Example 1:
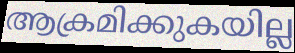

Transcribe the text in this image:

ആക്രമിക്കുകയില്ല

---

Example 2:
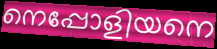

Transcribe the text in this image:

നെപ്പോളിയനെ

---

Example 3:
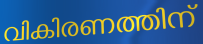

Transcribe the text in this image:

വികിരണത്തിന്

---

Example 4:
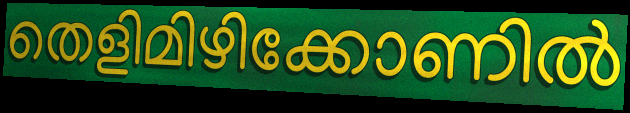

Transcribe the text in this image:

തെളിമിഴിക്കോണിൽ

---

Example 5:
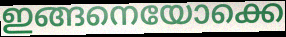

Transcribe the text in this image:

ഇങ്ങനെയോക്കെ